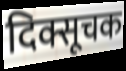
दिक्सूचक